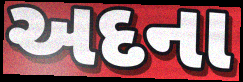
અદના